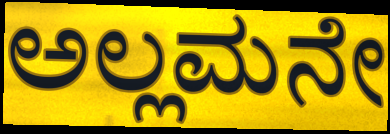
ಅಲ್ಲಮನೇ